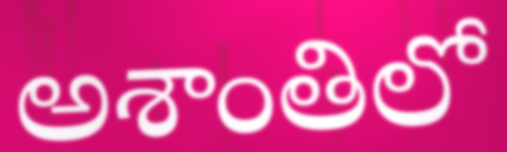
అశాంతిలో